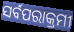
ସର୍ବପରାକ୍ରମୀ